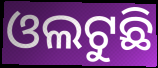
ଓଲଟୁଛି